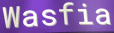
Wasfia